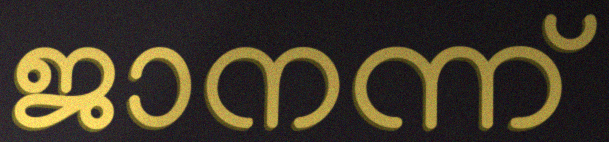
ജാനന്ന്